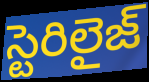
స్టెరిలైజ్